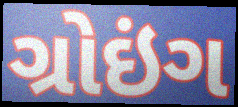
ગ્રોઇંગ